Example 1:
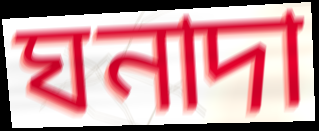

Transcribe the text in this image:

ঘনাদা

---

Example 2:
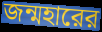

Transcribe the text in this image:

জন্মহারের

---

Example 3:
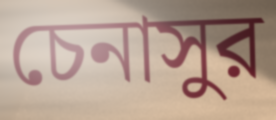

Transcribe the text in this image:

চেনাসুর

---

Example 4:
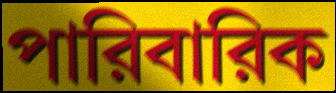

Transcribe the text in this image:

পারিবারিক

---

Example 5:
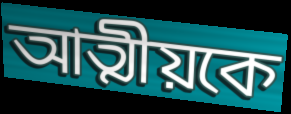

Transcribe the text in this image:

আত্মীয়কে